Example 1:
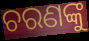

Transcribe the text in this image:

ଚରଣଙ୍କୁ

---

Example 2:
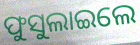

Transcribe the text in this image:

ଫୁସୁଲାଇଲେ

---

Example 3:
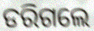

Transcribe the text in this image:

ଡରିଗଲେ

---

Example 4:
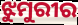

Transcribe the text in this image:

ଝୁମୁରୀର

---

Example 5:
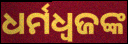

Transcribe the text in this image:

ଧର୍ମଧ୍ୱଜଙ୍କ